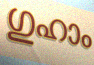
ഗുഹാം